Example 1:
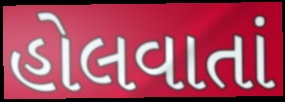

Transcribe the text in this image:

હોલવાતાં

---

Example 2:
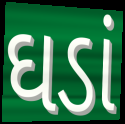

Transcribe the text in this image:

ઘડાં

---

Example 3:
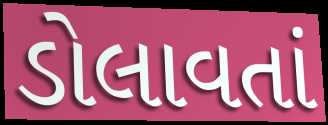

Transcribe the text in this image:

ડોલાવતાં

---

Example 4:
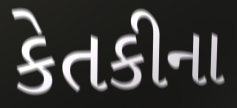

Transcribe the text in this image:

કેતકીના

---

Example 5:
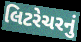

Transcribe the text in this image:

લિટરેચરનું